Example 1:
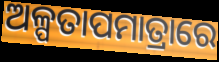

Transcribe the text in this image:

ଅଳ୍ପତାପମାତ୍ରାରେ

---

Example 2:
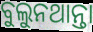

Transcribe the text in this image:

ବୁଲୁନଥାନ୍ତା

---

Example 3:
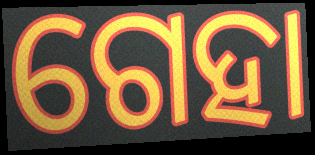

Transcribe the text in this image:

ଗେହା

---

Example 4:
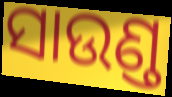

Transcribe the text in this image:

ସାଉଣ୍ଡ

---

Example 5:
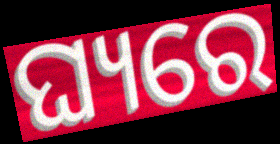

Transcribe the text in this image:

ଘ୍ୟରେ